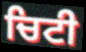
ਚਿਟੀ